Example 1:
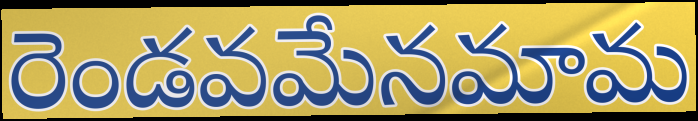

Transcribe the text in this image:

రెండవమేనమామ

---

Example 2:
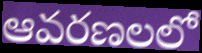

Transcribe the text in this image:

ఆవరణలలో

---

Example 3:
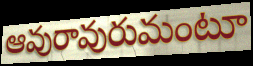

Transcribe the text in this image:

ఆవురావురుమంటూ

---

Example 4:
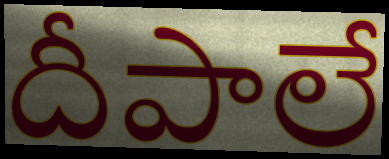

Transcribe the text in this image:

దీపాలే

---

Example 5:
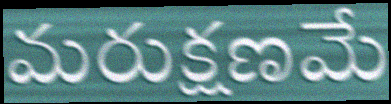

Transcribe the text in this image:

మరుక్షణమే